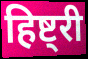
हिष्ट्री